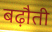
बढ़ौती